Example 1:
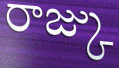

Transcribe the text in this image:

రాజ్కు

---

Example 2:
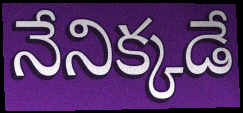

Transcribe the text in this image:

నేనిక్కడే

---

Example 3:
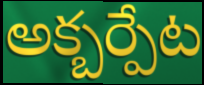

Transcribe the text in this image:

అక్బర్పేట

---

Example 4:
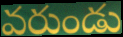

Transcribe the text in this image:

వరుండు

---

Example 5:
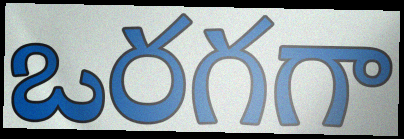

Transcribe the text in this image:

ఒరగగా